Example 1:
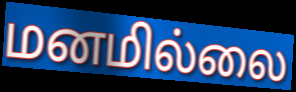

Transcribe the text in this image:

மனமில்லை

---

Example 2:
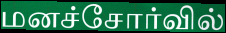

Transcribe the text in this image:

மனச்சோர்வில்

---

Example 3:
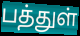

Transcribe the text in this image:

பத்துள்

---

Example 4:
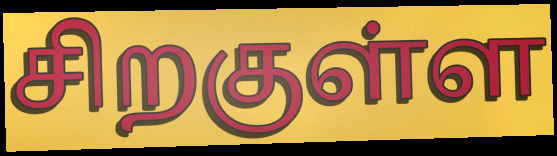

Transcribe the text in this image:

சிறகுள்ள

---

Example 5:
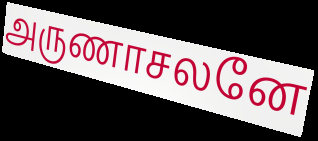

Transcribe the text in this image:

அருணாசலனே